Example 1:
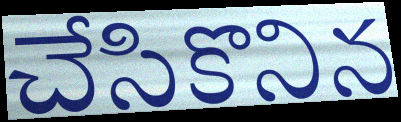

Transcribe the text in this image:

చేసికొనిన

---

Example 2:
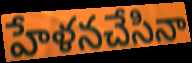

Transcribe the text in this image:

హేళనచేసినా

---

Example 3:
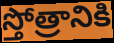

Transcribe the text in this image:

స్తోత్రానికి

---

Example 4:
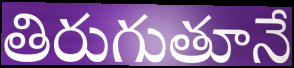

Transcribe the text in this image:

తిరుగుతూనే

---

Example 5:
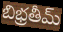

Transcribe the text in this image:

బిభ్రతీమ్